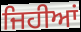
ਜਿਹੀਆਂ